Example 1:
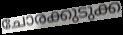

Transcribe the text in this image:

ചോരക്കുടുക്ക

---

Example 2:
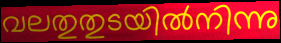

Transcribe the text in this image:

വലതുതുടയിൽനിന്നു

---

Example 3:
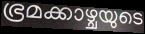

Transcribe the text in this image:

ഭ്രമക്കാഴ്ചയുടെ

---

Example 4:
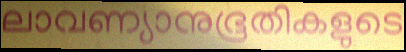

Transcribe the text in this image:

ലാവണ്യാനുഭൂതികളുടെ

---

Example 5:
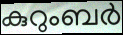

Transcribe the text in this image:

കുറുംബർ